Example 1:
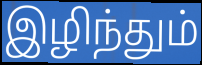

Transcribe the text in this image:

இழிந்தும்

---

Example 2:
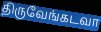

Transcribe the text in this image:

திருவேங்கடவா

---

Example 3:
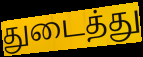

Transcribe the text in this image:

துடைத்து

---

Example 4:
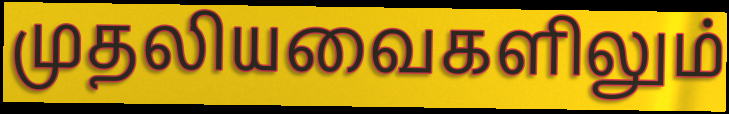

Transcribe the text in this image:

முதலியவைகளிலும்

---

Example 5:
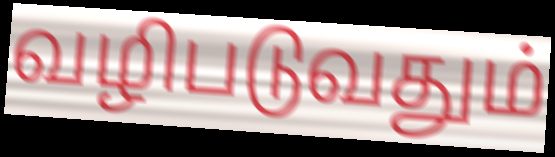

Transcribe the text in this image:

வழிபடுவதும்